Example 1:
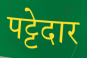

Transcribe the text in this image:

पट्टेदार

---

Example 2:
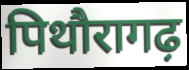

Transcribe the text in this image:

पिथौरागढ़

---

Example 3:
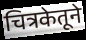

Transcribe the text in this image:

चित्रकेतूने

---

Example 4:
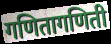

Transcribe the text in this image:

गणितागणिती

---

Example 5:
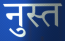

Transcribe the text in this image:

नुस्त